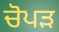
ਚੋਪੜ